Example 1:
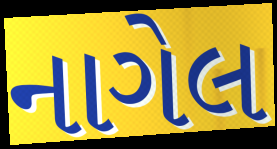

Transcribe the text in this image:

નાગેલ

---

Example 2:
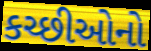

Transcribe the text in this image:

કચ્છીઓનો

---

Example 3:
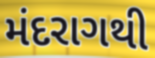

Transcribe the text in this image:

મંદરાગથી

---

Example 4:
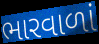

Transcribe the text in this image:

ભારવાળાં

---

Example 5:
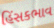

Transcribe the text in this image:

હિંસકભાવ